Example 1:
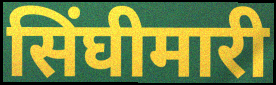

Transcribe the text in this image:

सिंघीमारी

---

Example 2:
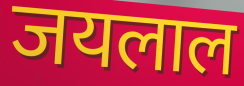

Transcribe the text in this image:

जयलाल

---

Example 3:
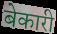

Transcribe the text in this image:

बेकारी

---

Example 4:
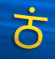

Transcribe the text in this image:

ठं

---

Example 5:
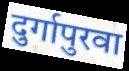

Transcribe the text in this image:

दुर्गापुरवा